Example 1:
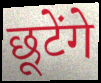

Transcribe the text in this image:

छूटेंगे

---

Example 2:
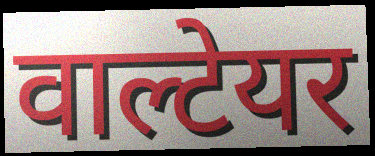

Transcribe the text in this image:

वाल्टेयर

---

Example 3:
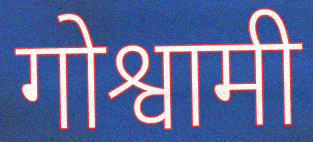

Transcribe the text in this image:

गोश्वामी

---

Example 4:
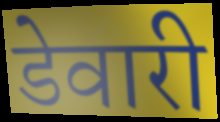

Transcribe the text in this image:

डेवारी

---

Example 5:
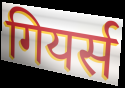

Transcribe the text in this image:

गियर्स